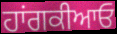
ਹਾਂਗਕੀਆਓ